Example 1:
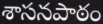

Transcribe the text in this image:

శాసనపాఠం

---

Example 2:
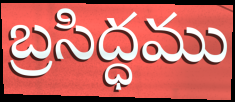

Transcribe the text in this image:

బ్రసిద్ధము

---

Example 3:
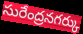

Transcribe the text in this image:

సురేంద్రనగర్కు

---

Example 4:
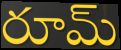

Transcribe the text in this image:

రూమ్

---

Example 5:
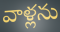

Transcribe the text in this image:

వాళ్లను